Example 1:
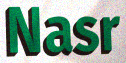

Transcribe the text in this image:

Nasr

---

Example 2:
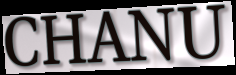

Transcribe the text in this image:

CHANU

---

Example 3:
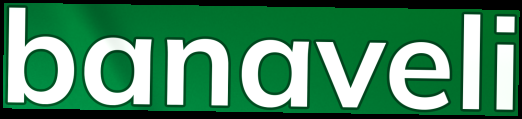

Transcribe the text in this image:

banaveli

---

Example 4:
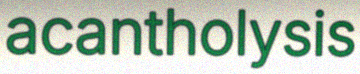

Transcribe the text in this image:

acantholysis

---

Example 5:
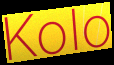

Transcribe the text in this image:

Kolo